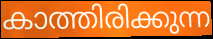
കാത്തിരിക്കുന്ന